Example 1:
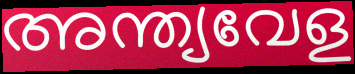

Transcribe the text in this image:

അന്ത്യവേള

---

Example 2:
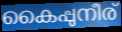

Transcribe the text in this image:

കൈപ്പുനീര്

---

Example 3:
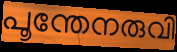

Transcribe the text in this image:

പൂന്തേനരുവി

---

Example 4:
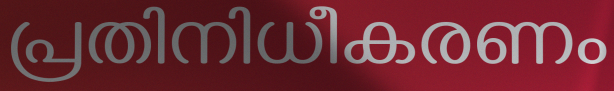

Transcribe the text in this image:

പ്രതിനിധീകരണം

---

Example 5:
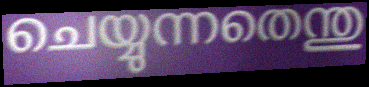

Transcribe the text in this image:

ചെയ്യുന്നതെന്തു